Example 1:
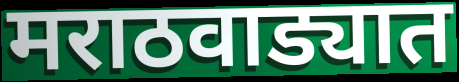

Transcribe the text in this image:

मराठवाड्यात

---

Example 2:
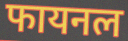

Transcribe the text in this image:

फायनल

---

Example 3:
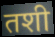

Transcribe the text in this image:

तशी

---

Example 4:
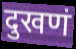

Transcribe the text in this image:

दुखणं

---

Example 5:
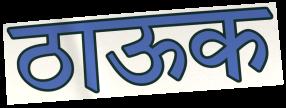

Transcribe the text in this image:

ठाऊक